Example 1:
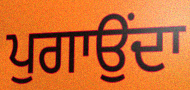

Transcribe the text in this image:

ਪੁਗਾਉਂਦਾ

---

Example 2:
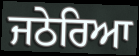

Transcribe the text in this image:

ਜਠੇਰਿਆ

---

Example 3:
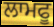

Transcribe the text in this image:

ਲਾਮਫੂ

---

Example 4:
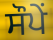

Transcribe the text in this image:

ਸੌਪੇਂ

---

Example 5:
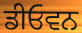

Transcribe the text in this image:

ਡੀਓਵਨ